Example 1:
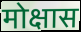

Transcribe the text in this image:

मोक्षास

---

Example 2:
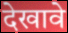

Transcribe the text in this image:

देखावे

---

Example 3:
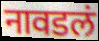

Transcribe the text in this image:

नावडलं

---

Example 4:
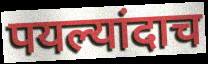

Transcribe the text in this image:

पयल्यांदाच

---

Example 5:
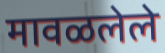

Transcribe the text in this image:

मावळलेले